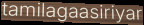
tamilagaasiriyar